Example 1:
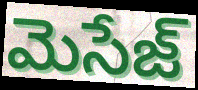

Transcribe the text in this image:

మెసేజ్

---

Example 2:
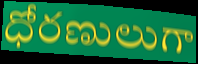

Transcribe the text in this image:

ధోరణులుగా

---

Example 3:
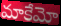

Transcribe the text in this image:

మాకేమో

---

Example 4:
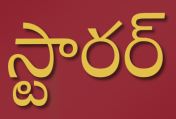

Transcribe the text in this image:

స్టారర్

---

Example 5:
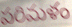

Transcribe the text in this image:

పరిమళం